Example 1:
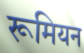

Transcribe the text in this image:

रूमियन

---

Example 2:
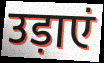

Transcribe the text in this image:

उड़ाएं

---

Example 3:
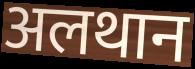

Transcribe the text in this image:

अलथान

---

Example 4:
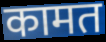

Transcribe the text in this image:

कामत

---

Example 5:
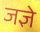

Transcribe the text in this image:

जज्ञे